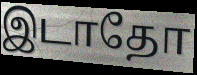
இடாதோ